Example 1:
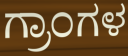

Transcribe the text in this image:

ಗ್ರಾಂಗಳ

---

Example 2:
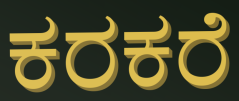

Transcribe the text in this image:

ಕರಕರೆ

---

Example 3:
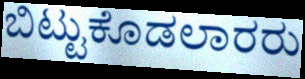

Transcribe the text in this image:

ಬಿಟ್ಟುಕೊಡಲಾರರು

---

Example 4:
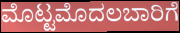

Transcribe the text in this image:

ಮೊಟ್ಟಮೊದಲಬಾರಿಗೆ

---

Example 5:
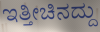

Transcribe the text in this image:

ಇತ್ತೀಚಿನದ್ದು